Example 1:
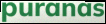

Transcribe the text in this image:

puranas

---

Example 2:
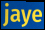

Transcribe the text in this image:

jaye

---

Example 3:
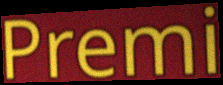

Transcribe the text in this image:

Premi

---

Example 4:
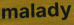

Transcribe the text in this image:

malady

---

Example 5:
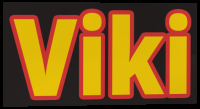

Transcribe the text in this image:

Viki